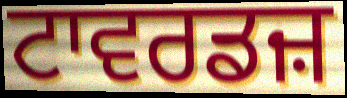
ਟਾਵਰਡਜ਼